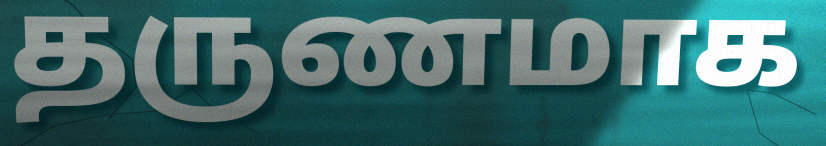
தருணமாக